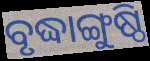
ବୃଦ୍ଧାଙ୍ଗୁଷ୍ଠି